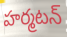
హర్మటన్